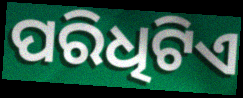
ପରିଧିଟିଏ